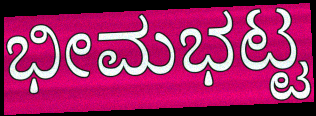
ಭೀಮಭಟ್ಟ